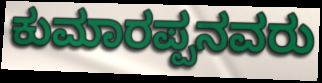
ಕುಮಾರಪ್ಪನವರು